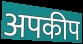
अपकीप